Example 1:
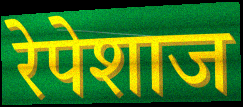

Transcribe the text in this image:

रेपेशाज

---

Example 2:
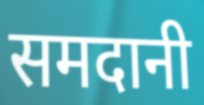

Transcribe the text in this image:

समदानी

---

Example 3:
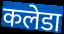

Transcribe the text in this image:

कलेडा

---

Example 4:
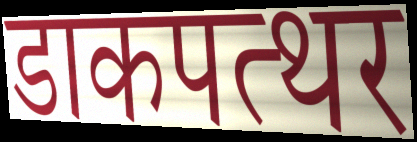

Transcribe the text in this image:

डाकपत्थर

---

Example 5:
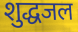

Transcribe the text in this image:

शुद्धजल